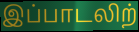
இப்பாடலிற்